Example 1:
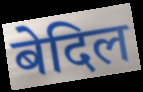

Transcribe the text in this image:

बेदिल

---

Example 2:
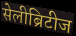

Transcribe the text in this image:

सेलीब्रिटीज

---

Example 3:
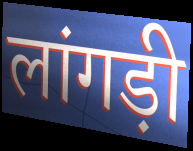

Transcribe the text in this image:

लांगड़ी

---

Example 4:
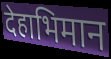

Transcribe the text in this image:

देहाभिमान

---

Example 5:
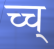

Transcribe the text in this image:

च्च्